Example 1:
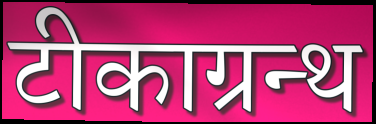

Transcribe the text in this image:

टीकाग्रन्थ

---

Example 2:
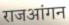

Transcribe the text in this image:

राजआंगन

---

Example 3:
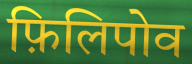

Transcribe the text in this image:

फ़िलिपोव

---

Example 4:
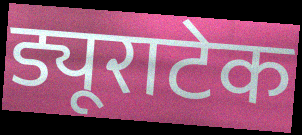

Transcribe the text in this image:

ड्यूराटेक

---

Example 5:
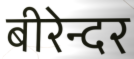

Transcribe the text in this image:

बीरेन्दर